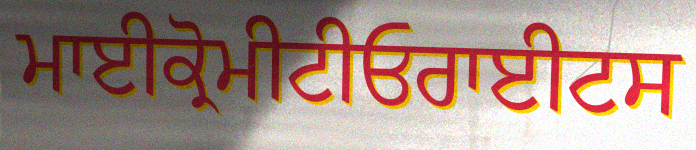
ਮਾਈਕ੍ਰੋਮੀਟੀਓਰਾਈਟਸ